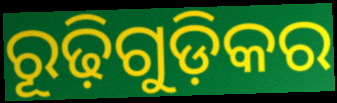
ରୂଢ଼ିଗୁଡ଼ିକର